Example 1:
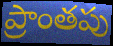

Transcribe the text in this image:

ప్రాంతపు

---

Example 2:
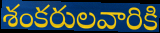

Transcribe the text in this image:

శంకరులవారికి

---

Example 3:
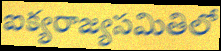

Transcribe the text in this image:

ఐక్యరాజ్యసమితిలో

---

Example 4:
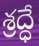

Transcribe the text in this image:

శ్రద్ధే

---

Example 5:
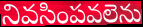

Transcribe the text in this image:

నివసింపవలెను